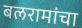
बलरामांचा